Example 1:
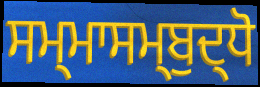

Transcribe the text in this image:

ਸਮ੍ਮਾਸਮ੍ਬੁਦ੍ਧੋ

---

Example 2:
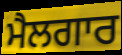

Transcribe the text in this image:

ਮੈਲਗਾਰ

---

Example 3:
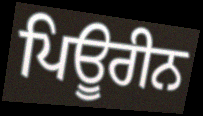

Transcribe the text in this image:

ਪਿਊਰੀਨ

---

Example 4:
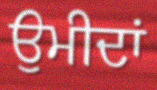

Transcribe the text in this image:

ਉਮੀਦਾਂ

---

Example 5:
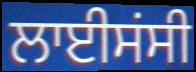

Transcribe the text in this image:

ਲਾਈਸਂਸੀ